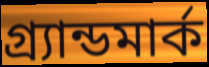
গ্র্যান্ডমার্ক